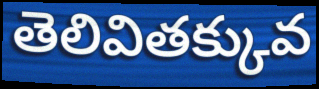
తెలివితక్కువ